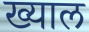
ख्याल